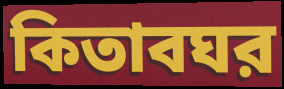
কিতাবঘর